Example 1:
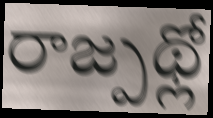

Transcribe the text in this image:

రాజ్పథ్లో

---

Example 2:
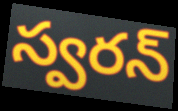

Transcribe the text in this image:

స్వరన్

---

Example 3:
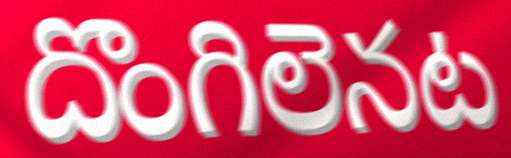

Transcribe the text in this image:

దొంగిలెనట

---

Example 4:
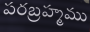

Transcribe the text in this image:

పరబ్రహ్మము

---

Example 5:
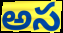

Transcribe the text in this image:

అస